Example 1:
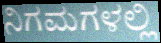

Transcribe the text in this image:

ನಿಗಮಗಳಲ್ಲಿ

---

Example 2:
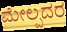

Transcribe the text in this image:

ಮೇಲ್ಪದರ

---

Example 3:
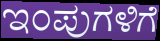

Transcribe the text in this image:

ಇಂಪುಗಳಿಗೆ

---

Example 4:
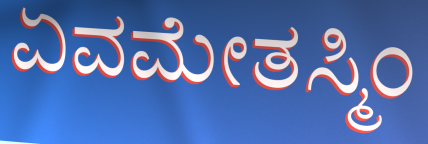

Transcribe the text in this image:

ಏವಮೇತಸ್ಮಿಂ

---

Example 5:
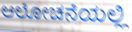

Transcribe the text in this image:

ಆಲೋಚನೆಯಲ್ಲಿ